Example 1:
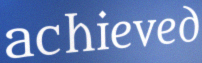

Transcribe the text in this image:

achieved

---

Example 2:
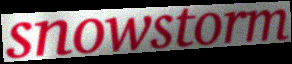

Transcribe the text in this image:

snowstorm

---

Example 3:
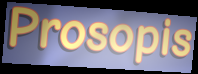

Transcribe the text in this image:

Prosopis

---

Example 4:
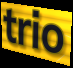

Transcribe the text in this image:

trio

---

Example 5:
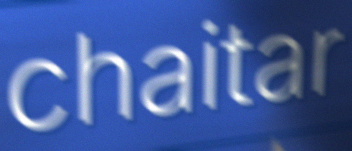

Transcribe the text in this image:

chaitar